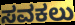
ಸವಕಲು